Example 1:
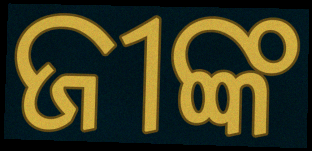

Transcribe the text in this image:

ଜୀଙ୍କ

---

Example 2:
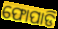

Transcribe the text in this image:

ଫୋପାଡି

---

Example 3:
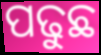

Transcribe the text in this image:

ପଢୁଛ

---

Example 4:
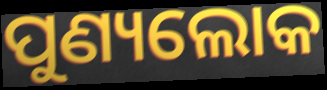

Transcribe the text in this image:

ପୁଣ୍ୟଲୋକ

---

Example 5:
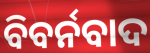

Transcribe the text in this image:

ବିବର୍ନବାଦ